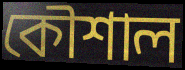
কৌশাল